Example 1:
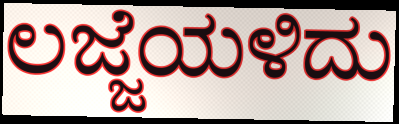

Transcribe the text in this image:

ಲಜ್ಜೆಯಳಿದು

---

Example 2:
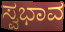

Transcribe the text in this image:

ಸ್ವಭಾವ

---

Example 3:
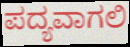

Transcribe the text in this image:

ಪದ್ಯವಾಗಲಿ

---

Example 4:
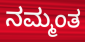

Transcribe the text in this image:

ನಮ್ಮಂತ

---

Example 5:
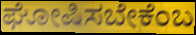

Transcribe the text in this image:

ಘೋಷಿಸಬೇಕೆಂಬ